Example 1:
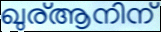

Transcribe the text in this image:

ഖുര്ആനിന്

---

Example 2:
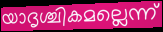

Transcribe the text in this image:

യാദൃശ്ചികമല്ലെന്ന്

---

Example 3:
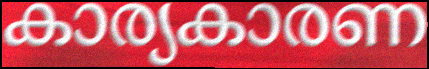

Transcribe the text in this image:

കാര്യകാരണ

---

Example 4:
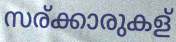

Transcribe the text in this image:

സര്ക്കാരുകള്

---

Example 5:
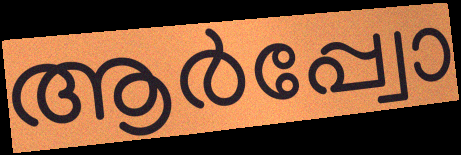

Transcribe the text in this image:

ആർപ്പ്വോ